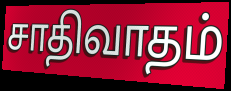
சாதிவாதம்